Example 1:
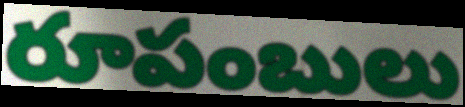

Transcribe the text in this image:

రూపంబులు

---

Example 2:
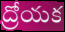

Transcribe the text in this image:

ద్రోయక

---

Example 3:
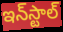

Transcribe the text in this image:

ఇన్‌స్టాల్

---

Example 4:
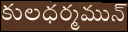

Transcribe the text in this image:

కులధర్మమున్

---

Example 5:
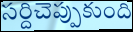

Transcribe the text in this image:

సర్దిచెప్పుకుంది